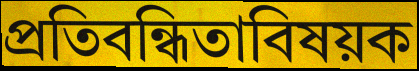
প্রতিবন্ধিতাবিষয়ক